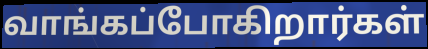
வாங்கப்போகிறார்கள்